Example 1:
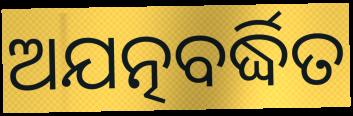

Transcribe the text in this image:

ଅଯତ୍ନବର୍ଦ୍ଧିତ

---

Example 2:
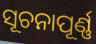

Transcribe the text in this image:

ସୂଚନାପୂର୍ଣ୍ଣ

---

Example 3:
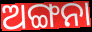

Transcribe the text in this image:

ଅଙ୍ଗନା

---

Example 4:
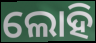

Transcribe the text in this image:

ଲୋହି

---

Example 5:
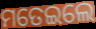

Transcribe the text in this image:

ମତେଇଲେ